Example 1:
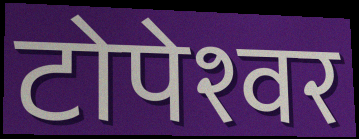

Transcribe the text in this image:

टोपेश्वर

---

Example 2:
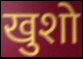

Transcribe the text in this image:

खुशो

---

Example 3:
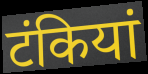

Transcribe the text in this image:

टंकियां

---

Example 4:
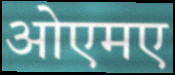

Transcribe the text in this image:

ओएमए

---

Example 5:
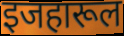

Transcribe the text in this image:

इजहारूल